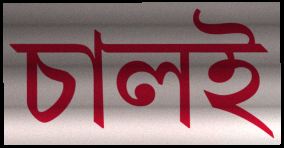
চালই